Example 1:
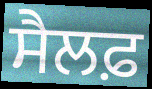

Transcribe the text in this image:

ਸੈਲਫ਼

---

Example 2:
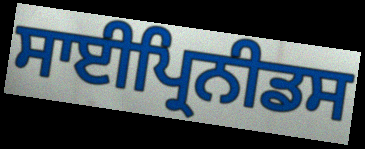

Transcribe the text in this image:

ਸਾਈਪ੍ਰਿਨੀਡਸ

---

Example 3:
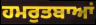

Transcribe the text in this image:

ਹਮਰੁਤਬਾਆਂ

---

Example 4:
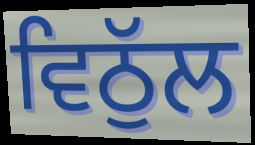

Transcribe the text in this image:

ਵਿਠੁੱਲ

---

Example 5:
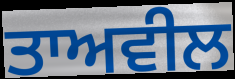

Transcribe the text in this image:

ਤਾਅਵੀਲ